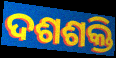
ଦଶଶକ୍ତି